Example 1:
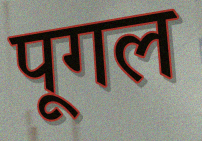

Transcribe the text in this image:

पूगल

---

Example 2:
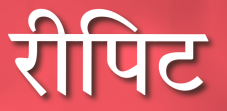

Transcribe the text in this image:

रीपिट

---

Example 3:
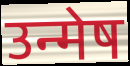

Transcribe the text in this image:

उन्मेष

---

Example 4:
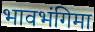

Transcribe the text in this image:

भावभंगिमा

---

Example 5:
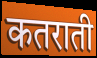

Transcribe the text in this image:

कतराती